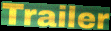
Trailer